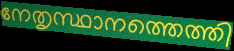
നേതൃസ്ഥാനത്തെത്തി